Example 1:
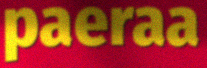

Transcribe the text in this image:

paeraa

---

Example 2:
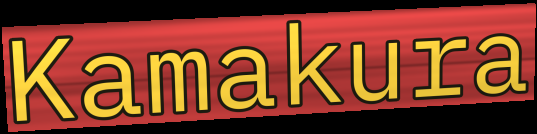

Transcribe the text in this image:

Kamakura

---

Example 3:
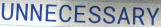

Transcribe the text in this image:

UNNECESSARY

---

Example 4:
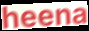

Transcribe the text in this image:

heena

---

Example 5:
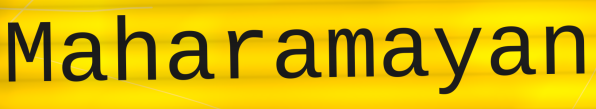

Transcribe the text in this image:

Maharamayan